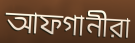
আফগানীরা